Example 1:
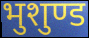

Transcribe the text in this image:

भुशुण्ड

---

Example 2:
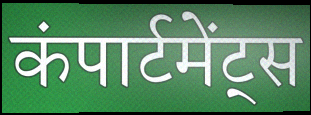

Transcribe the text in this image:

कंपार्टमेंट्स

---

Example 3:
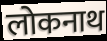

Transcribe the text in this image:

लोकनाथ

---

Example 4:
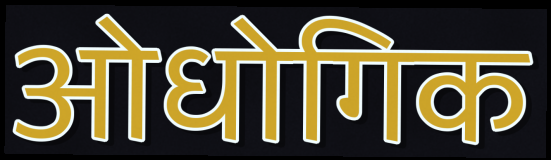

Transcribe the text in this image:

ओधोगिक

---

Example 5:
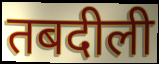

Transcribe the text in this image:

तबदीली